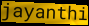
jayanthi